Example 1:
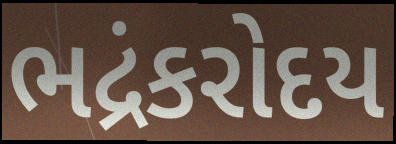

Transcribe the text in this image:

ભદ્રંકરોદય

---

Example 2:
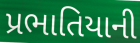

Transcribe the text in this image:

પ્રભાતિયાની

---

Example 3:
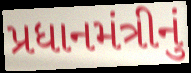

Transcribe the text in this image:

પ્રધાનમંત્રીનું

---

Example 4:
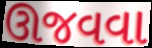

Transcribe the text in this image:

ઊજવવા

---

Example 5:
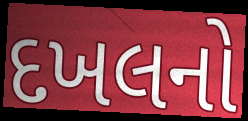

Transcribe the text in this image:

દખલનો